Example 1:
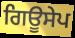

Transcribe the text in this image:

ਗਿਊਸੇਪ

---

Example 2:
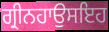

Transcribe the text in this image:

ਗ੍ਰੀਨਹਾਉਸਇਹ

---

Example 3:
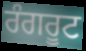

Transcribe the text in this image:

ਰੰਗਰੂਟ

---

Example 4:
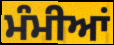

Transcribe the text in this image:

ਮੰਮੀਆਂ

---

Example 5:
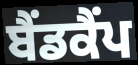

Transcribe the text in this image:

ਬੈਂਡਕੈਂਪ